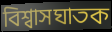
বিশ্বাসঘাতক